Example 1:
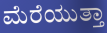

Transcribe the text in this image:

ಮೆರೆಯುತ್ತಾ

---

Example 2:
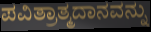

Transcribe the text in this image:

ಪವಿತ್ರಾತ್ಮದಾನವನ್ನು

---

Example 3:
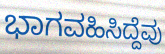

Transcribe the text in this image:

ಭಾಗವಹಿಸಿದ್ದೆವು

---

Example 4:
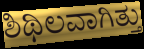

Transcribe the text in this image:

ಶಿಥಿಲವಾಗಿತ್ತು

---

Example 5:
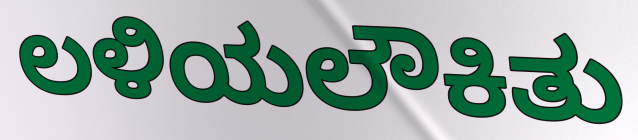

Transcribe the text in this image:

ಲಳಿಯಲೌಕಿತು